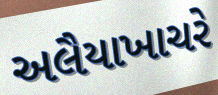
અલૈયાખાચરે